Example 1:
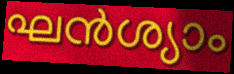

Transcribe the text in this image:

ഘൻശ്യാം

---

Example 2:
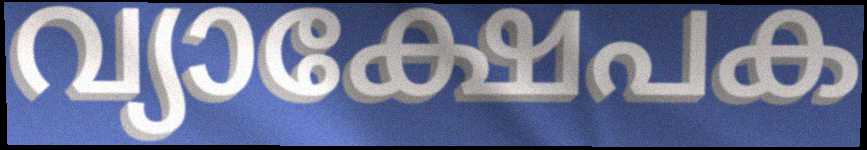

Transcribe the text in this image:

വ്യാക്ഷേപക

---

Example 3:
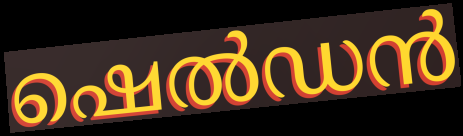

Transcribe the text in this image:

ഷെൽഡൻ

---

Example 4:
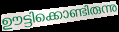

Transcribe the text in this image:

ഊട്ടിക്കൊണ്ടിരുന്നു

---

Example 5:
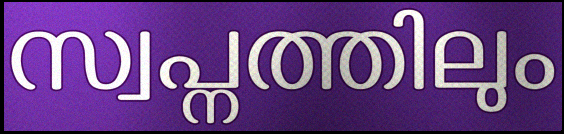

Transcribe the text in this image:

സ്വപ്നത്തിലും